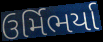
ઉર્મિભર્યા